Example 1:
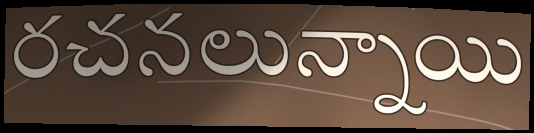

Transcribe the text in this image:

రచనలున్నాయి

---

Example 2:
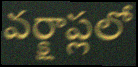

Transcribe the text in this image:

వర్క్షాప్లలో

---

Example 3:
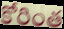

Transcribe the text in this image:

కోరింత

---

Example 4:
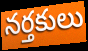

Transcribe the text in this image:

నర్తకులు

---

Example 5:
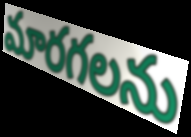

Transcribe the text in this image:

మారగలను